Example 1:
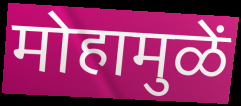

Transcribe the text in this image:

मोहामुळें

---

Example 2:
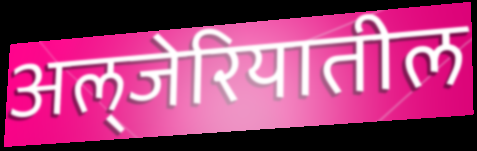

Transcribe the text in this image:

अल्जेरियातील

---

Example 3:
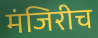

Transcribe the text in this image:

मंजिरीच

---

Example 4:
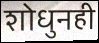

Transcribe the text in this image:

शोधुनही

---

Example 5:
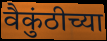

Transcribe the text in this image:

वैकुंठीच्या